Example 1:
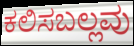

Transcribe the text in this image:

ಕಲಿಸಬಲ್ಲವು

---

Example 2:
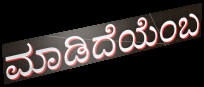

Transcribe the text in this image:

ಮಾಡಿದೆಯೆಂಬ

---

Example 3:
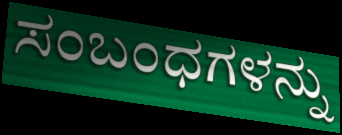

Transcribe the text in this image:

ಸಂಬಂಧಗಳನ್ನು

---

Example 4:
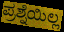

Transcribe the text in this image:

ಪ್ರಶ್ನೆಯಿಲ್ಲ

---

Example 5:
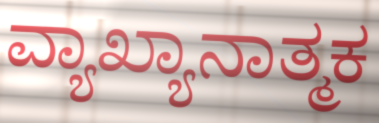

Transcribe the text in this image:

ವ್ಯಾಖ್ಯಾನಾತ್ಮಕ